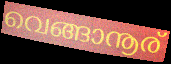
വെങ്ങാനൂര്